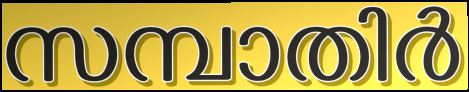
സമ്പാതിർ